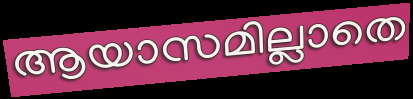
ആയാസമില്ലാതെ